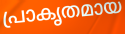
പ്രാകൃതമായ